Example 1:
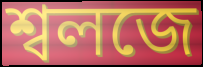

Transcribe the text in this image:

শ্বলজে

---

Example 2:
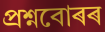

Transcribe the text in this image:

প্ৰশ্নবোৰৰ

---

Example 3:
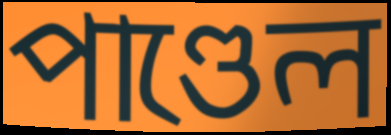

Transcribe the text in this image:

পাণ্ডেল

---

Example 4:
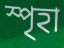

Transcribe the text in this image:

স্পৃহা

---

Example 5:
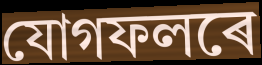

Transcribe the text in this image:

যোগফলৰে